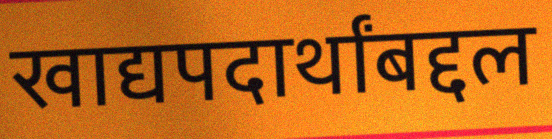
खाद्यपदार्थांबद्दल